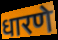
धारणे